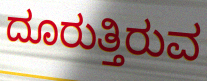
ದೂರುತ್ತಿರುವ